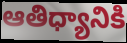
ఆతిధ్యానికి